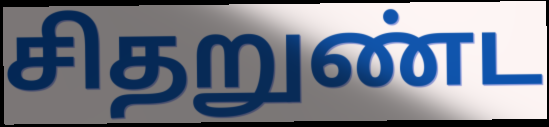
சிதறுண்ட